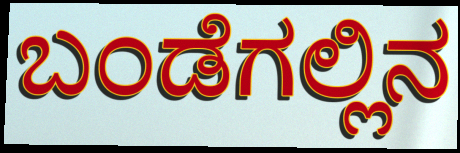
ಬಂಡೆಗಲ್ಲಿನ